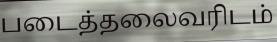
படைத்தலைவரிடம்